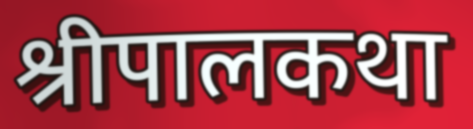
श्रीपालकथा